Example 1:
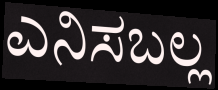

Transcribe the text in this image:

ಎನಿಸಬಲ್ಲ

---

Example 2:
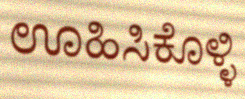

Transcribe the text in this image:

ಊಹಿಸಿಕೊಳ್ಳಿ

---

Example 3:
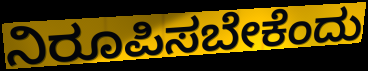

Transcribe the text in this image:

ನಿರೂಪಿಸಬೇಕೆಂದು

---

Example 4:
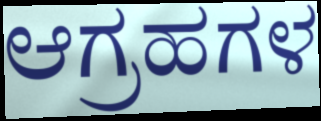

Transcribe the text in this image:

ಆಗ್ರಹಗಳ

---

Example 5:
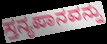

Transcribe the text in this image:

ಸ್ತನ್ಯಪಾನವನ್ನು